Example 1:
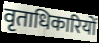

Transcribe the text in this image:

वृताधिकारियों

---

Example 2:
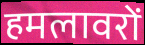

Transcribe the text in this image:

हमलावरों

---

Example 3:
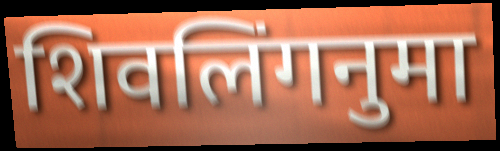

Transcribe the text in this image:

शिवलिंगनुमा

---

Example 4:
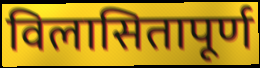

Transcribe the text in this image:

विलासितापूर्ण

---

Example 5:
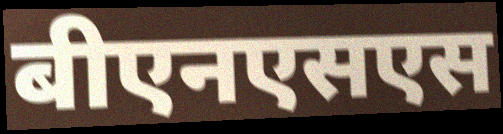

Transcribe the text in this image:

बीएनएसएस